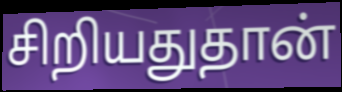
சிறியதுதான்